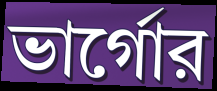
ভার্গোর